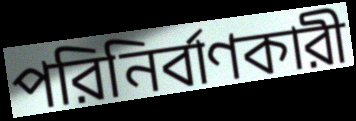
পরিনির্বাণকারী